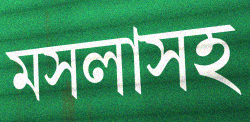
মসলাসহ